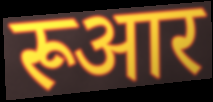
रूआर